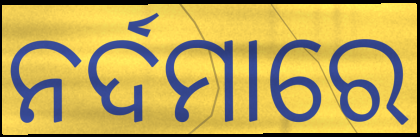
ନର୍ଦମାରେ